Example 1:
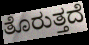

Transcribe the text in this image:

ತೊರುತ್ತದೆ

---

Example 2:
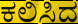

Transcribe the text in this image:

ಕಲಿಸಿದ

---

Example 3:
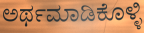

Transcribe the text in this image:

ಅರ್ಥಮಾಡಿಕೊಳ್ಳಿ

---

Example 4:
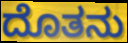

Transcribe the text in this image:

ದೊತನು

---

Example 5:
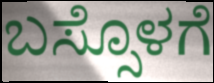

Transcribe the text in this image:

ಬಸ್ಸೊಳಗೆ